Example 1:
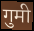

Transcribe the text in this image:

गुमी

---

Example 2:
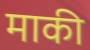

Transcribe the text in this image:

माकी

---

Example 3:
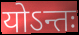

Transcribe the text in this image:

योऽन्तः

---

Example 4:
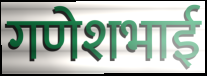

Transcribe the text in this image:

गणेशभाई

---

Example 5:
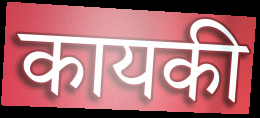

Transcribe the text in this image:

कायकी